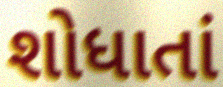
શોધાતાં